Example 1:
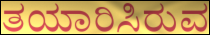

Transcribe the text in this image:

ತಯಾರಿಸಿರುವ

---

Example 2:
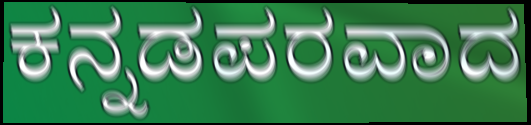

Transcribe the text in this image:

ಕನ್ನಡಪರವಾದ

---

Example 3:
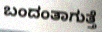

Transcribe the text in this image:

ಬಂದಂತಾಗುತ್ತೆ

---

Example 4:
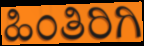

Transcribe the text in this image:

ಹಿಂತಿರಿಗಿ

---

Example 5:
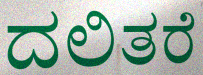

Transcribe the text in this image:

ದಲಿತರೆ